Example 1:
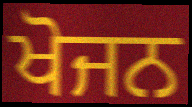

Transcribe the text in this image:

ਖੋਜਨ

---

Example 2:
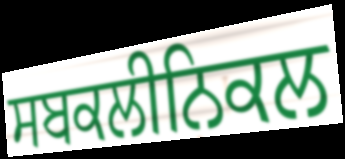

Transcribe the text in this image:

ਸਬਕਲੀਨਿਕਲ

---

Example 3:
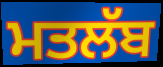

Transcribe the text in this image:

ਮਤਲੱਬ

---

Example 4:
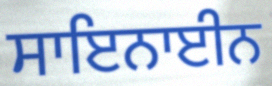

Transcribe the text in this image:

ਸਾਇਨਾਈਨ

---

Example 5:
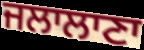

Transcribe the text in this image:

ਜਲਾਲਾਣਾ